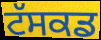
ਟੱਸਕਡ